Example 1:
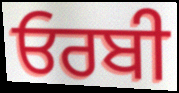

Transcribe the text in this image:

ਓਰਬੀ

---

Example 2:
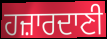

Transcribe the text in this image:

ਹਜ਼ਾਰਦਾਣੀ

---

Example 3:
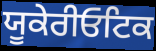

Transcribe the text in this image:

ਯੂਕੇਰੀਓਟਿਕ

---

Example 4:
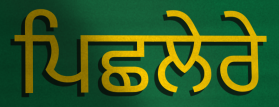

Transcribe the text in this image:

ਪਿਛਲੇਰੇ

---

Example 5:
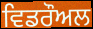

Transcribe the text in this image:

ਵਿਡਰੌਅਲ